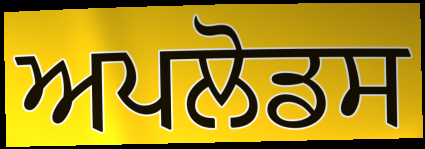
ਅਪਲੋਡਸ